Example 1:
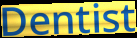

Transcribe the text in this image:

Dentist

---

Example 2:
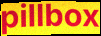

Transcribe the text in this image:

pillbox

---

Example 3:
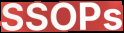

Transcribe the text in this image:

SSOPs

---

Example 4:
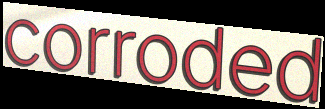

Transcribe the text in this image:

corroded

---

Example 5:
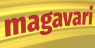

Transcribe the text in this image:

magavari